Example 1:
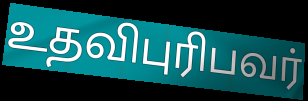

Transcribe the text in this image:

உதவிபுரிபவர்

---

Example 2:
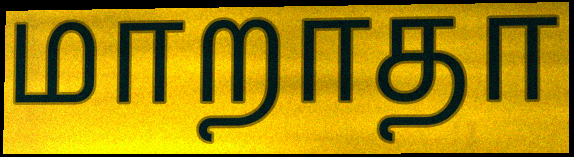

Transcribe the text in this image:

மாறாதா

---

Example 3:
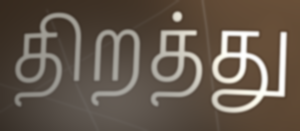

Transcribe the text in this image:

திறத்து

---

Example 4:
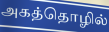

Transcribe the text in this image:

அகத்தொழில்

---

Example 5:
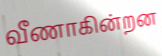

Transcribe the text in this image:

வீணாகின்றன